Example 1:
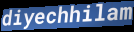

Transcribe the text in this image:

diyechhilam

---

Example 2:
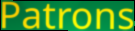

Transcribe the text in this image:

Patrons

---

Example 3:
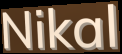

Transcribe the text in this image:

Nikal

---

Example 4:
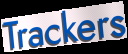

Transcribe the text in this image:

Trackers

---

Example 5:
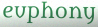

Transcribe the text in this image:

euphony